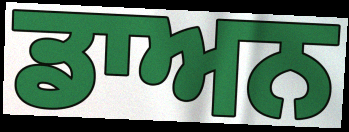
ਡਾਅਨ